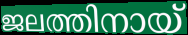
ജലത്തിനായ്